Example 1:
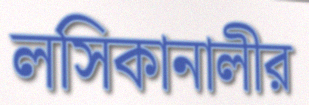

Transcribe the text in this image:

লসিকানালীর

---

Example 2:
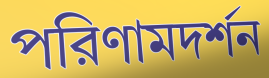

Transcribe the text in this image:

পরিণামদর্শন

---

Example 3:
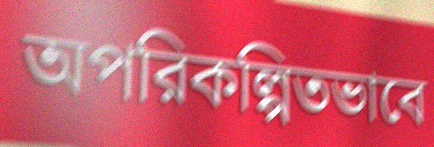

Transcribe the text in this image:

অপরিকল্পিতভাবে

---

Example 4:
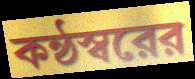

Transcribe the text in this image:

কন্ঠস্বরের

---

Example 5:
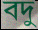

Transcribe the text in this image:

বদু